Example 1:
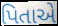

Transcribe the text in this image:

પિતાએ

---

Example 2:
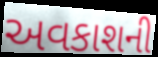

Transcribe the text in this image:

અવકાશની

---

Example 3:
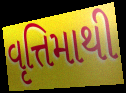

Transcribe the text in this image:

વૃત્તિમાથી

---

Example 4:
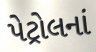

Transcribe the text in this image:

પેટ્રોલનાં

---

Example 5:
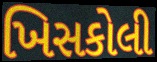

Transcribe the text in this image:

ખિસકોલી